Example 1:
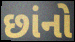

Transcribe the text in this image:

છાંનો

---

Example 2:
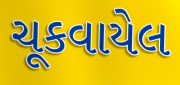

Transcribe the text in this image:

ચૂકવાયેલ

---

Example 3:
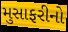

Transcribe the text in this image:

મુસાફરીનો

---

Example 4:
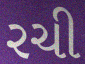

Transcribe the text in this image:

રચી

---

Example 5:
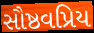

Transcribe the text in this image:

સૌષ્ઠવપ્રિય